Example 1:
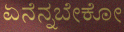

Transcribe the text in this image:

ಏನೆನ್ನಬೇಕೋ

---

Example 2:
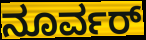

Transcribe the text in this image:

ನೂರ್ವರ್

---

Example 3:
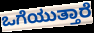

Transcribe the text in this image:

ಒಗೆಯುತ್ತಾರೆ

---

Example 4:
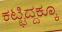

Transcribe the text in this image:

ಕಟ್ಟಿದ್ದಕ್ಕೂ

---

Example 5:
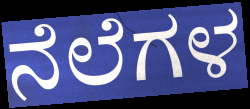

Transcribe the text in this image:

ನೆಲೆಗಳ